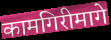
कामगिरीमागे